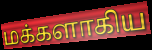
மக்களாகிய